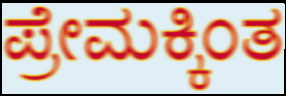
ಪ್ರೇಮಕ್ಕಿಂತ